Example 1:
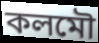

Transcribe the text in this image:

কলমৌ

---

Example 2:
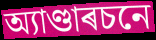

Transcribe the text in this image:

অ্যাণ্ডাৰচনে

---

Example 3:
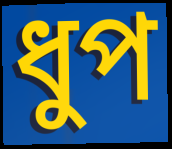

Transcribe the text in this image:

ধুপ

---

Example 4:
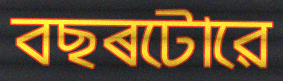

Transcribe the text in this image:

বছৰটোৱে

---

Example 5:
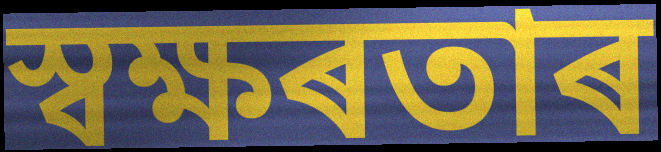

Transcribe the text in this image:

স্বক্ষৰতাৰ